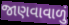
જાણવાવાળું